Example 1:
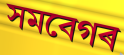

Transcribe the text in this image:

সমবেগৰ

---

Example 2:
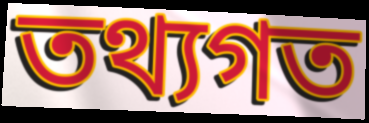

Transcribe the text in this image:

তথ্যগত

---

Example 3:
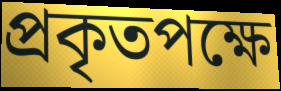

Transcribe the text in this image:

প্ৰকৃতপক্ষে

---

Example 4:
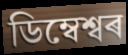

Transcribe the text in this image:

ডিম্বেশ্বৰ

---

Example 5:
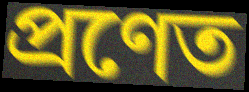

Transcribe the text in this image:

প্ৰণেত